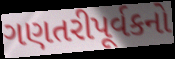
ગણતરીપૂર્વકનો